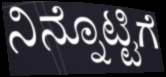
ನಿನ್ನೊಟ್ಟಿಗೆ